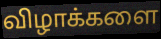
விழாக்களை